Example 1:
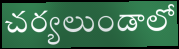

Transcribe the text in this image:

చర్యలుండాలో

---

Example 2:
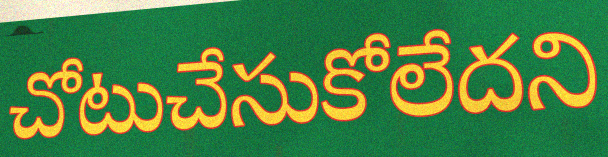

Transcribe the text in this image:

చోటుచేసుకోలేదని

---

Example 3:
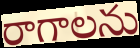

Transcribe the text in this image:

రాగాలను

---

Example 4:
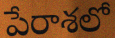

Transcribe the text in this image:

పేరాశలో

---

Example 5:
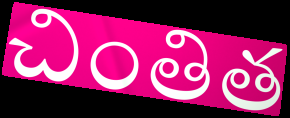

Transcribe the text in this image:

చింతిత